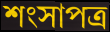
শংসাপত্র